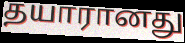
தயாரானது